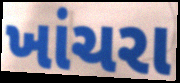
ખાંચરા